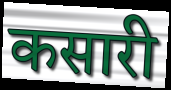
कसारी